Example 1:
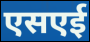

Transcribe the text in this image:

एसएई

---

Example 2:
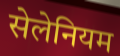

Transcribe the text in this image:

सेलेनियम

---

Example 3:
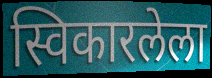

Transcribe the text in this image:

स्विकारलेला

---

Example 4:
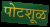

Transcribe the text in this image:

पोटशूळ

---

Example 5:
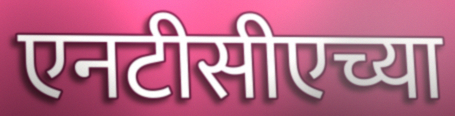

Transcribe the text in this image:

एनटीसीएच्या